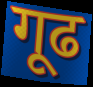
गूढ